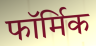
फॉर्मिक